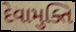
દેવામુક્તિ